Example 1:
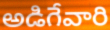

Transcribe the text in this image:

అడిగేవారి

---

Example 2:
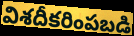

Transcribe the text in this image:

విశదీకరింపబడి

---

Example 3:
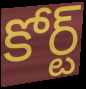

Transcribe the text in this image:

కోర్ట్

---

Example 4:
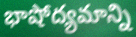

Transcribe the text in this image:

భాషోద్యమాన్ని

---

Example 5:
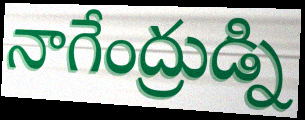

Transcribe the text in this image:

నాగేంద్రుడ్ని